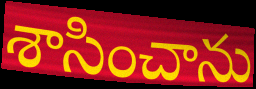
శాసించాను